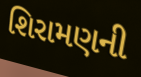
શિરામણની